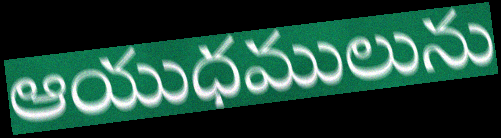
ఆయుధములును